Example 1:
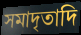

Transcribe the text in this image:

সমাদৃতাদি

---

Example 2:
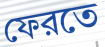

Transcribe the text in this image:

ফেরতে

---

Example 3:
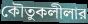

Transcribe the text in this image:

কৌতুকলীলার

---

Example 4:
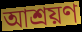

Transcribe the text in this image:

আশ্রয়ণ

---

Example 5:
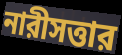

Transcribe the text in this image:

নারীসত্তার